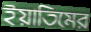
ইয়াতিমের